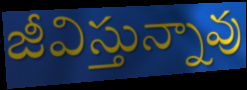
జీవిస్తున్నావు